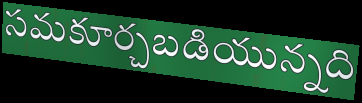
సమకూర్చబడియున్నది